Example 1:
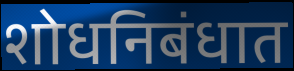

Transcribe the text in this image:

शोधनिबंधात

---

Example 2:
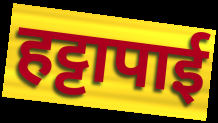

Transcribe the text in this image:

हट्टापाई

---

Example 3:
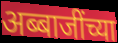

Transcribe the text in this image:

अब्बाजींच्या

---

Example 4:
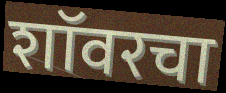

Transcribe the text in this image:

शॉवरचा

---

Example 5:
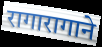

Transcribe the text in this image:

रागारागाने